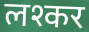
लश्कर